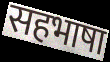
सहभाषा